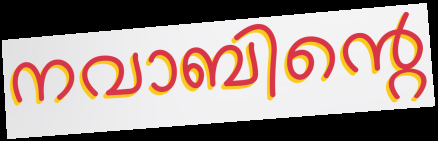
നവാബിന്റെ